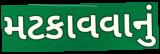
મટકાવવાનું